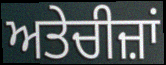
ਅਤੇਚੀਜ਼ਾਂ